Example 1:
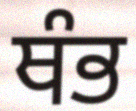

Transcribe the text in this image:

ਥੰਭ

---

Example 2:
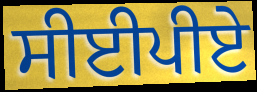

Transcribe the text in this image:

ਸੀਈਪੀਏ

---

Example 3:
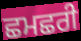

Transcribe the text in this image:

ਛਮਛਰੀ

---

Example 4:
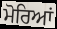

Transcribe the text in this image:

ਮੋਰਿਆਂ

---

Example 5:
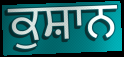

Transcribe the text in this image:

ਕੁਸ਼ਾਨ